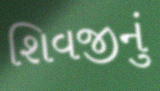
શિવજીનું